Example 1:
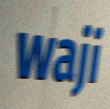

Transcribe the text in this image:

waji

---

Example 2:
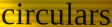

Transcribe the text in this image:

circulars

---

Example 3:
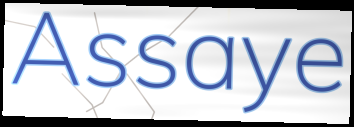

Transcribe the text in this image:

Assaye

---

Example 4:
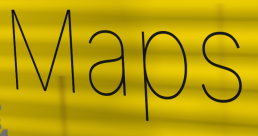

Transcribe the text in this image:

Maps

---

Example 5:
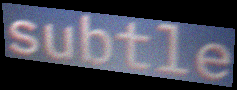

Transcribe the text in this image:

subtle